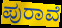
ಪುರಾವೆ